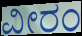
ವೀರಂ